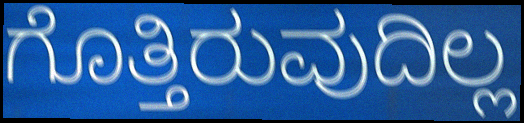
ಗೊತ್ತಿರುವುದಿಲ್ಲ